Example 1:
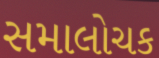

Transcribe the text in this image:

સમાલોચક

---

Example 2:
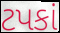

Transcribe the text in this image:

ટપકાં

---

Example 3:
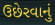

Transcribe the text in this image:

ઉછેરવાનું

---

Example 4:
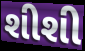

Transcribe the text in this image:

શીશી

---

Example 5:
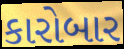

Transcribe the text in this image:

કારોબાર